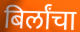
बिर्लांचा